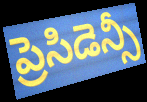
ప్రెసిడెన్సీ